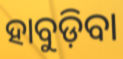
ହାବୁଡ଼ିବା